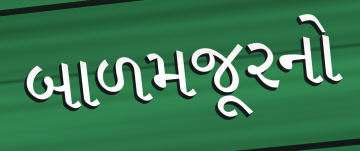
બાળમજૂરનો